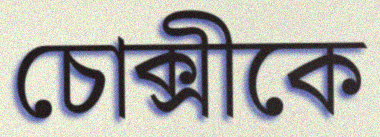
চোক্সীকে